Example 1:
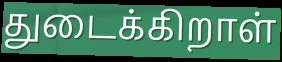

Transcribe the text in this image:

துடைக்கிறாள்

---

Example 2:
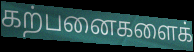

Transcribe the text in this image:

கற்பனைகளைக்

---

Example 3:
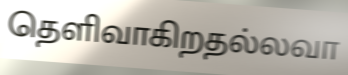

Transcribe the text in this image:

தெளிவாகிறதல்லவா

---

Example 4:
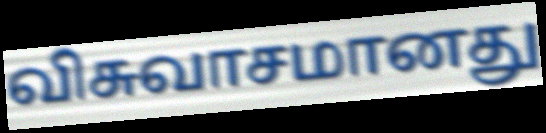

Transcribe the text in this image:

விசுவாசமானது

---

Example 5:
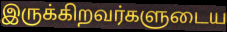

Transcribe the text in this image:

இருக்கிறவர்களுடைய